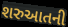
શરુઆતની